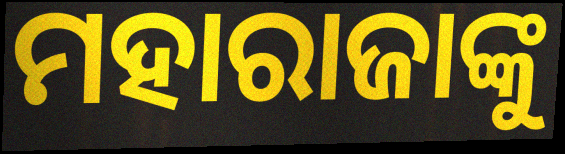
ମହାରାଜାଙ୍କୁ